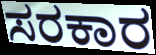
ಸರಕಾರ